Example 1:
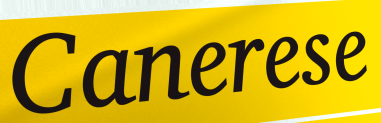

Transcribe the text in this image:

Canerese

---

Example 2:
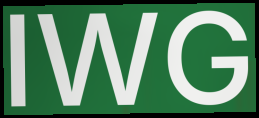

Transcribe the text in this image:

IWG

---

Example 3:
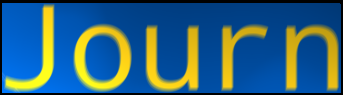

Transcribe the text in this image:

Journ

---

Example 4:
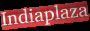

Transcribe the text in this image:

Indiaplaza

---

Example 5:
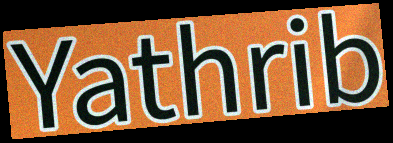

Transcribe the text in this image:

Yathrib